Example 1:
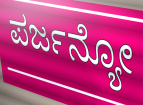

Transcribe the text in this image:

ಪರ್ಜನ್ಯೋ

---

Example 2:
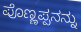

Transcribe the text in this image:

ಪೊಣ್ಣಪ್ಪನನ್ನು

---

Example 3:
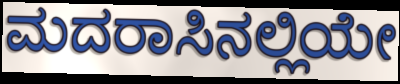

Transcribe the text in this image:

ಮದರಾಸಿನಲ್ಲಿಯೇ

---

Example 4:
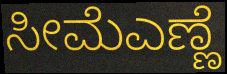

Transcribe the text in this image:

ಸೀಮೆಎಣ್ಣೆ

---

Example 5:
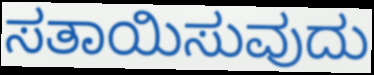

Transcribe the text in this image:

ಸತಾಯಿಸುವುದು